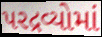
પરદ્રવ્યોમાં